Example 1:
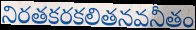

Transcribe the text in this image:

నిరతకరకలితనవనీతం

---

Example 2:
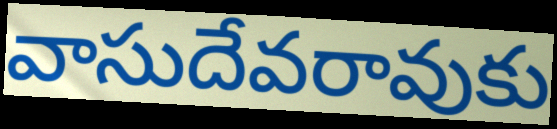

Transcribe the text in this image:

వాసుదేవరావుకు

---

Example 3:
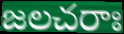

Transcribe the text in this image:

జలచరాః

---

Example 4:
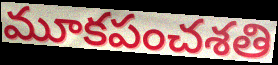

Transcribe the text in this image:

మూకపంచశతి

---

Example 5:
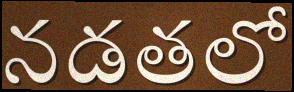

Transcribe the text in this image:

నడతలో